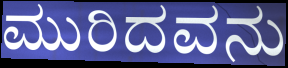
ಮುರಿದವನು